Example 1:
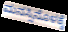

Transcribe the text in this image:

ಮನಸ್ಸಿನೊಳಕ್ಕೆ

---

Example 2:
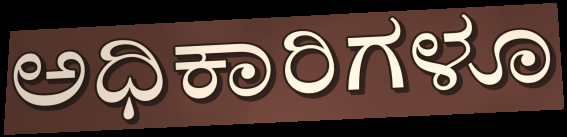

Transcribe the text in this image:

ಅಧಿಕಾರಿಗಳೂ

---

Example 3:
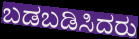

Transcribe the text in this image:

ಬಡಬಡಿಸಿದರು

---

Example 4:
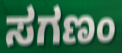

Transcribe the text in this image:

ಸಗಣಂ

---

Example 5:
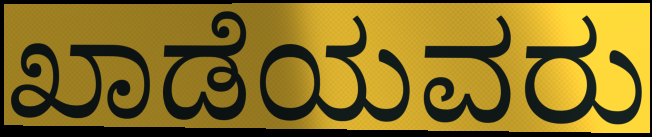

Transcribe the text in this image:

ಖಾಡೆಯವರು